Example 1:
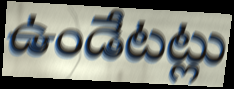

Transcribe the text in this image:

ఉండేటట్లు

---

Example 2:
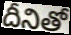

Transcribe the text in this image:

దీనితో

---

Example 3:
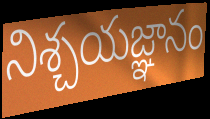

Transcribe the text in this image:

నిశ్చయజ్ఞానం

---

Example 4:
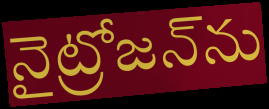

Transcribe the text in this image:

నైట్రోజన్‌ను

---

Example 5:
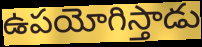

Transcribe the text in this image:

ఉపయోగిస్తాడు